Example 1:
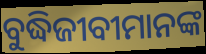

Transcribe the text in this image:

ବୁଦ୍ଧିଜୀବୀମାନଙ୍କ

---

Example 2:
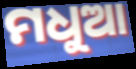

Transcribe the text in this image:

ମଧୁଆ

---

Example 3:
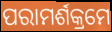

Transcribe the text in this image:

ପରାମର୍ଶକ୍ରମେ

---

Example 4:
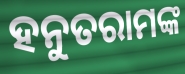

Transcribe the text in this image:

ହନୁତରାମଙ୍କ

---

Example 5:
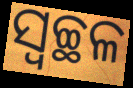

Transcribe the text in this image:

ସ୍ୱଚ୍ଛଳ